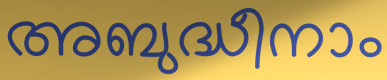
അബുദ്ധീനാം